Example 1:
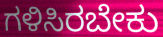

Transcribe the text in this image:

ಗಳಿಸಿರಬೇಕು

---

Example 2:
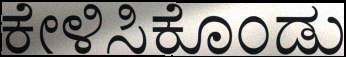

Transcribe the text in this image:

ಕೇಳಿಸಿಕೊಂಡು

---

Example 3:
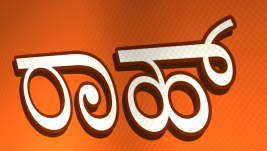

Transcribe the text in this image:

ರಾಹ್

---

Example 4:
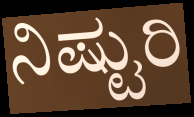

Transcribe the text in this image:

ನಿಷ್ಟುರಿ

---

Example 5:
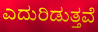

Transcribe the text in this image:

ಎದುರಿಡುತ್ತವೆ